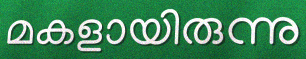
മകളായിരുന്നു